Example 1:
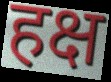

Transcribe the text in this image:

हक्ष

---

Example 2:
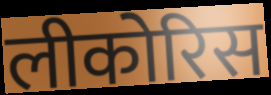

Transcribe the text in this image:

लीकोरिस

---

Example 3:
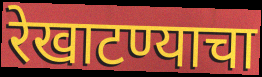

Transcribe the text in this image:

रेखाटण्याचा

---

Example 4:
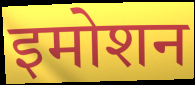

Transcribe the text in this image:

इमोशन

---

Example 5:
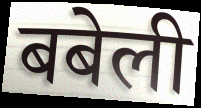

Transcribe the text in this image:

बबेली